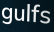
gulfs